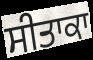
ਸੀਤਾਕਾ